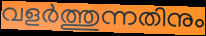
വളർത്തുന്നതിനും